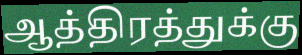
ஆத்திரத்துக்கு